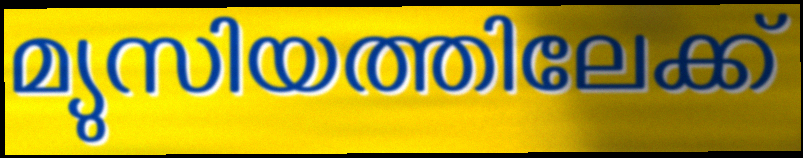
മ്യുസിയത്തിലേക്ക്